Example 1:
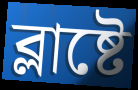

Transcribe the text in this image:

ব্লাষ্টে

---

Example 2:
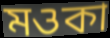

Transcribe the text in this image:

মওকা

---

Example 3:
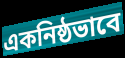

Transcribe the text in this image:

একনিষ্ঠভাবে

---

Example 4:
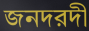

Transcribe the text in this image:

জনদরদী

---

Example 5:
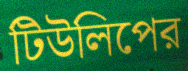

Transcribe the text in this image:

টিউলিপের